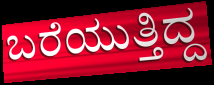
ಬರೆಯುತ್ತಿದ್ದ